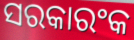
ସରକାରଂକ